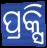
ପ୍ରକ୍ସି